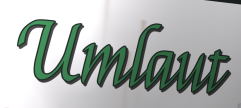
Umlaut